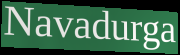
Navadurga